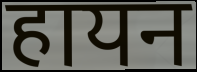
हायन